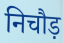
निचौड़